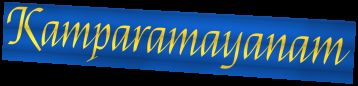
Kamparamayanam